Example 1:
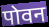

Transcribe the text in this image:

पोवन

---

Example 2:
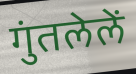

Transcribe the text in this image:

गुंतलेलें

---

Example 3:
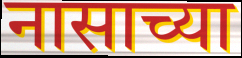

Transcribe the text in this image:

नासाच्या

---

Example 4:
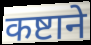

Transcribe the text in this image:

कष्टाने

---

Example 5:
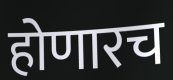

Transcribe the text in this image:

होणारच